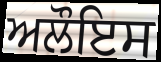
ਅਲੌਇਸ